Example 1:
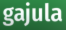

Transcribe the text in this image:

gajula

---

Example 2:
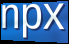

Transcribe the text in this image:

npx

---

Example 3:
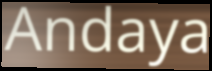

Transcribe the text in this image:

Andaya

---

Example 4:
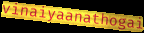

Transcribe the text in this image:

vinaiyaanathogai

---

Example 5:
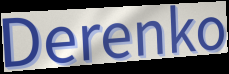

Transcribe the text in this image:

Derenko